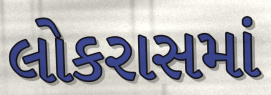
લોકરાસમાં